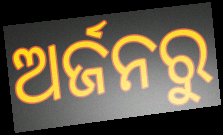
ଅର୍ଜନରୁ